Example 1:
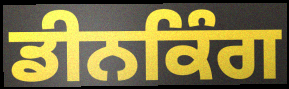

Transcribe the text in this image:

ਡੀਨਕਿੰਗ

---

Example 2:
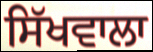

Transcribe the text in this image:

ਸਿੱਖਵਾਲਾ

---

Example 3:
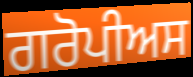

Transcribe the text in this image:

ਗਰੋਪੀਅਸ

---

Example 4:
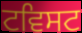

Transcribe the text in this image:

ਟਵਿਸਟ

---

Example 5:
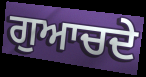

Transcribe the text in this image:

ਗੁਆਚਦੇ